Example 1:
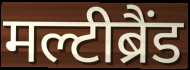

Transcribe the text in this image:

मल्टीब्रैंड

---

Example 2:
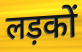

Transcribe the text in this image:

लड़कों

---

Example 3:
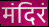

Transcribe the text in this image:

मंदिरं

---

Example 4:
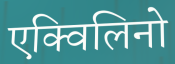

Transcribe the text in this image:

एक्विलिनो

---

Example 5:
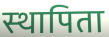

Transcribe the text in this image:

स्थापिता